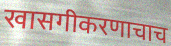
खासगीकरणाचाच